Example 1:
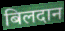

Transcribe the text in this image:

बिलदान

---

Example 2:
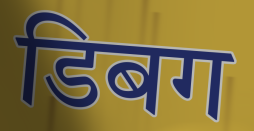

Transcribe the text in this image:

डिबग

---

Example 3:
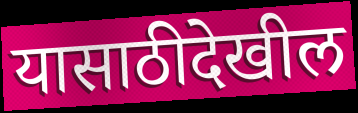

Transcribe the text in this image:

यासाठीदेखील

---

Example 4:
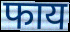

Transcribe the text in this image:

फाय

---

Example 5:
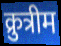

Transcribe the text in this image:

क्रुत्रीम